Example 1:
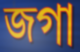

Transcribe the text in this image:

জগা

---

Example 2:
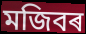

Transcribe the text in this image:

মজিবৰ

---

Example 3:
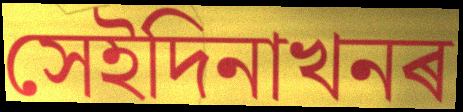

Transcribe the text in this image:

সেইদিনাখনৰ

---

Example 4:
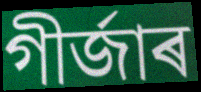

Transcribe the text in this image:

গীৰ্জাৰ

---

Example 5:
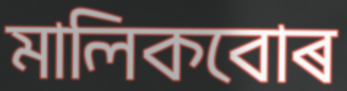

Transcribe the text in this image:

মালিকবোৰ